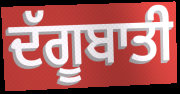
ਦੱਗੂਬਾਤੀ